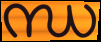
ന്ധ